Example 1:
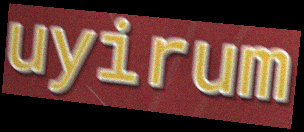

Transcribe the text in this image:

uyirum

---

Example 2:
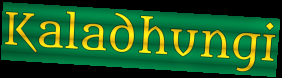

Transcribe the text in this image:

Kaladhungi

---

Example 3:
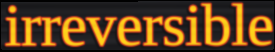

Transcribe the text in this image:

irreversible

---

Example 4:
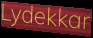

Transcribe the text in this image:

Lydekkar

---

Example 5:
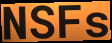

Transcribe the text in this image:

NSFs